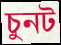
চুনট